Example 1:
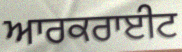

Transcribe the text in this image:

ਆਰਕਰਾਈਟ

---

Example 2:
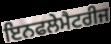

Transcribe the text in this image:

ਇਨਫਲੇਮੈਟਰੀਜ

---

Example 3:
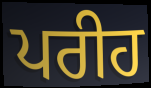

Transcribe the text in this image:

ਪਰੀਹ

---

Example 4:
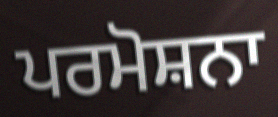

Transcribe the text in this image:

ਪਰਮੋਸ਼ਨਾ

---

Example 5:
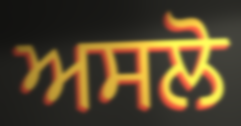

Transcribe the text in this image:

ਅਸਲੋ